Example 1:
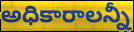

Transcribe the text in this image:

అధికారాలన్నీ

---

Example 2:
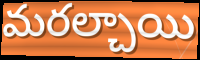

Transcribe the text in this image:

మరల్చాయి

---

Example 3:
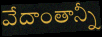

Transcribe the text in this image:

వేదాంతాన్నీ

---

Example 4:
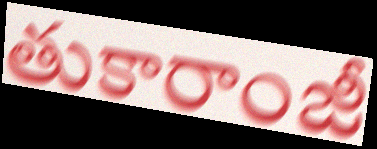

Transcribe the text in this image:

తుకారాంజీ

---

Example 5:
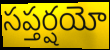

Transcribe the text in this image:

సప్తర్షయో